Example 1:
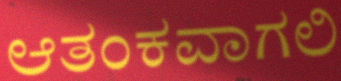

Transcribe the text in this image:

ಆತಂಕವಾಗಲಿ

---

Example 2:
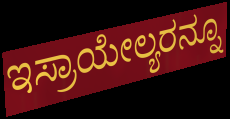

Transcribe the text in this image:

ಇಸ್ರಾಯೇಲ್ಯರನ್ನೂ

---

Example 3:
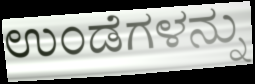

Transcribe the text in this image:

ಉಂಡೆಗಳನ್ನು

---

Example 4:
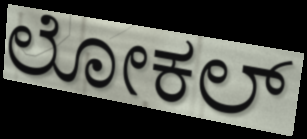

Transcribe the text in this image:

ಲೋಕಲ್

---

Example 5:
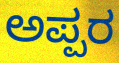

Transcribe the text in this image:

ಅಪ್ಪರ